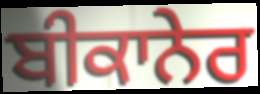
ਬੀਕਾਨੇਰ